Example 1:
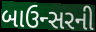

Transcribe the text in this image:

બાઉન્સરની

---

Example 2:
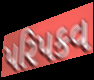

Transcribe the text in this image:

પરિપકવ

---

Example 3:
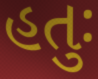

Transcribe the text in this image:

હતુઃ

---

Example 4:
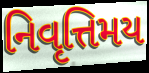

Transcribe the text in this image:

નિવૃત્તિમય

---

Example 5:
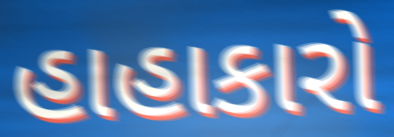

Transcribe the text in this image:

હાહાકારો